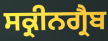
ਸਕ੍ਰੀਨਗ੍ਰੈਬ